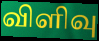
விளிவு